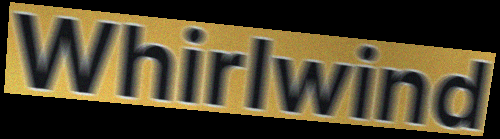
Whirlwind